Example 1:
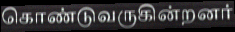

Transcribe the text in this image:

கொண்டுவருகின்றனர்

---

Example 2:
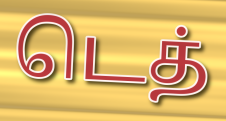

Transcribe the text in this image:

டெத்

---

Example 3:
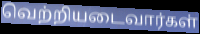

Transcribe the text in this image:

வெற்றியடைவார்கள்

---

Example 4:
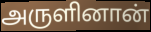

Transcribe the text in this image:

அருளினான்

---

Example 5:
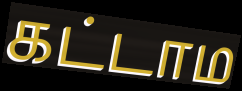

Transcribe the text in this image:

கட்டாம